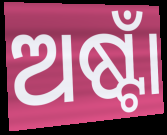
ଅଷ୍ଟାଁ